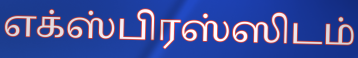
எக்ஸ்பிரஸ்ஸிடம்